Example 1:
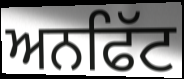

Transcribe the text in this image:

ਅਨਫਿੱਟ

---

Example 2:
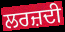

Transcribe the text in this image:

ਲਰਜ਼ਦੀ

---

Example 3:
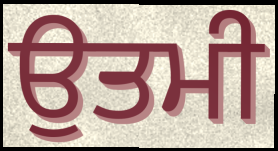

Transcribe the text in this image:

ਉਤਮੀ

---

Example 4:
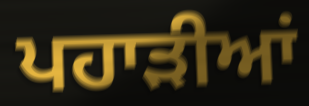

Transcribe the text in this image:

ਪਹਾਡ਼ੀਆਂ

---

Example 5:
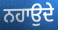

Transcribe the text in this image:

ਨਹਾਉਦੇ